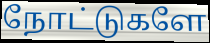
நோட்டுகளே